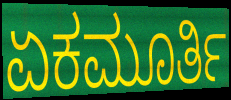
ಏಕಮೂರ್ತಿ